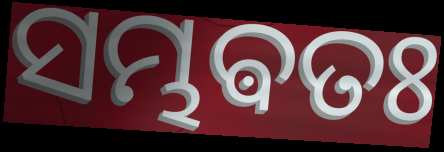
ସମ୍ଭଵତଃ